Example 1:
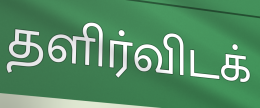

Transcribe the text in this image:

தளிர்விடக்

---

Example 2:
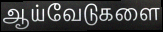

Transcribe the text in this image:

ஆய்வேடுகளை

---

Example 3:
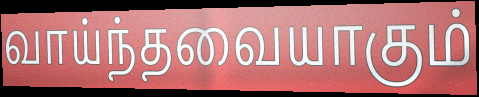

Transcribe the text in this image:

வாய்ந்தவையாகும்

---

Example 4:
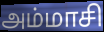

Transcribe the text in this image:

அம்மாசி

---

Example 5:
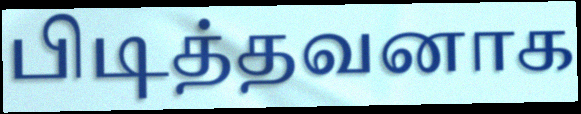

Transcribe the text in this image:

பிடித்தவனாக